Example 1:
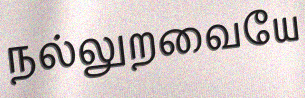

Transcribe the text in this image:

நல்லுறவையே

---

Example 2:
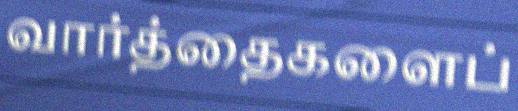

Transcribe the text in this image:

வார்த்தைகளைப்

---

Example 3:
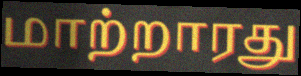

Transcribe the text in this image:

மாற்றாரது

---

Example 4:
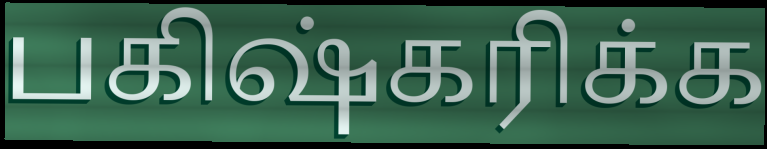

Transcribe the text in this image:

பகிஷ்கரிக்க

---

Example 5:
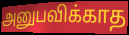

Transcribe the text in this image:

அனுபவிக்காத